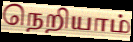
நெறியாம்